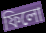
ফিলো